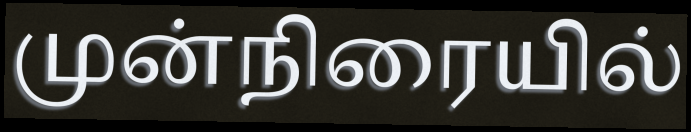
முன்நிரையில்